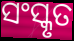
ସଂସ୍କୃତ